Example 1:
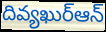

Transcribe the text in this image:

దివ్యఖుర్ఆన్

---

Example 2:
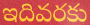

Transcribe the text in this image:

ఇదివరకు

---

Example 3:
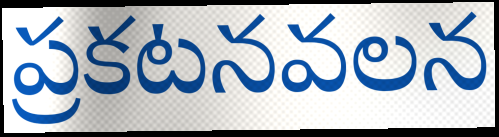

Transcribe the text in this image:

ప్రకటనవలన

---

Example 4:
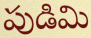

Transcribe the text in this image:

పుడిమి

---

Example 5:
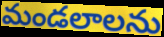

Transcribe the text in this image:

మండలాలను